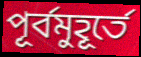
পূর্বমুহূর্তে